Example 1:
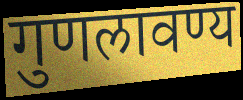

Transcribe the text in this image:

गुणलावण्य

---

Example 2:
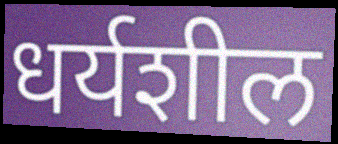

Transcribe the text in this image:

धर्यशील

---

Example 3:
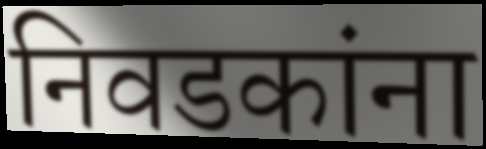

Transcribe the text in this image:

निवडकांना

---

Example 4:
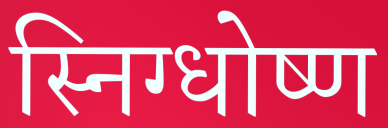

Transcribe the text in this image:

स्निग्धोष्ण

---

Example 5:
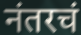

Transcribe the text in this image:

नंतरचं